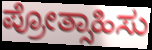
ಪ್ರೋತ್ಸಾಹಿಸು